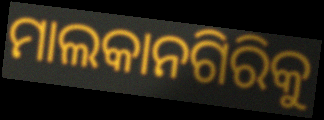
ମାଲକାନଗିରିକୁ